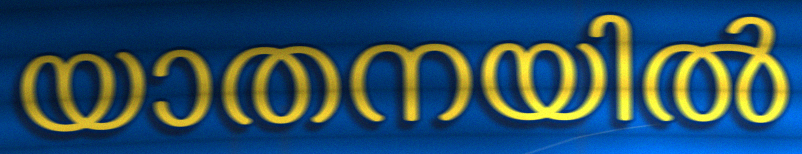
യാതനയിൽ